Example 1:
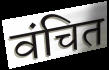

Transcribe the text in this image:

वंचित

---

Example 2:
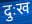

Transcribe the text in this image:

दुःख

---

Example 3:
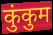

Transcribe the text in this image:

कुंकुम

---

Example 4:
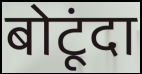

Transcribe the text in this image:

बोटूंदा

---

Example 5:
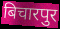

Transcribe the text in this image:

बिचारपुर